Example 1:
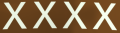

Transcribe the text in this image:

xxxx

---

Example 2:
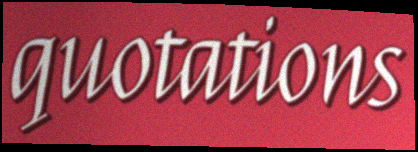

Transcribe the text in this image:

quotations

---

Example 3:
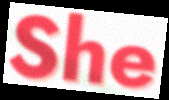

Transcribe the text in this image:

She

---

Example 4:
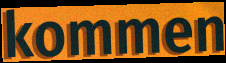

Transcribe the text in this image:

kommen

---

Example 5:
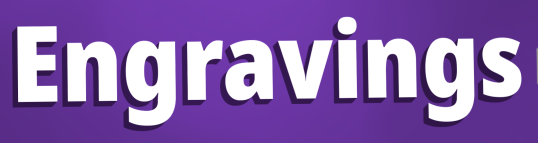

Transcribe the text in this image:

Engravings